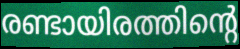
രണ്ടായിരത്തിന്റെ